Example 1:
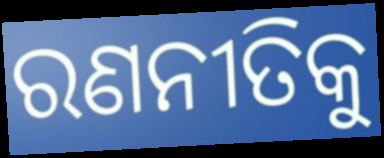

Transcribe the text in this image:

ରଣନୀତିକୁ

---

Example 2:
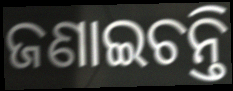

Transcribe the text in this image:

ଜଣାଇଚନ୍ତି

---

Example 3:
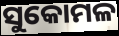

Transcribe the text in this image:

ସୁକୋମଳ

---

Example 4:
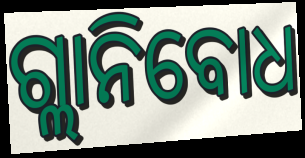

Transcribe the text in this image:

ଗ୍ଲାନିବୋଧ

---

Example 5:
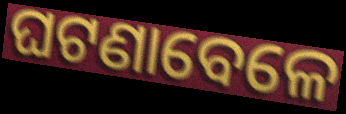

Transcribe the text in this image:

ଘଟଣାବେଳେ